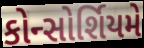
કોન્સોર્શિયમે